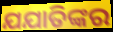
ଯଯାତିଙ୍କର